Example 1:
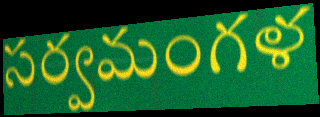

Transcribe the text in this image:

సర్వమంగళ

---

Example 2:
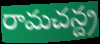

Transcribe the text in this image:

రామచన్ద్ర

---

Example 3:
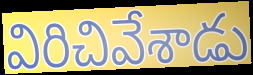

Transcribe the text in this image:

విరిచివేశాడు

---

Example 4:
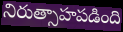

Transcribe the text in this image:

నిరుత్సాహపడింది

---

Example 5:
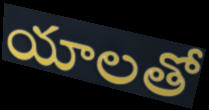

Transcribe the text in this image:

యాలతో